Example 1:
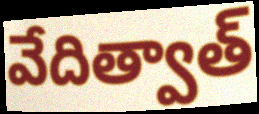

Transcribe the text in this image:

వేదిత్వాత్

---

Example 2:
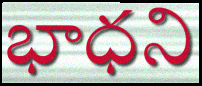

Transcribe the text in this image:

భాధని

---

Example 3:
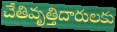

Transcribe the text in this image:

చేతివృత్తిదారులకు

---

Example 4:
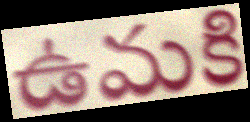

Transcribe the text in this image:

ఉమకి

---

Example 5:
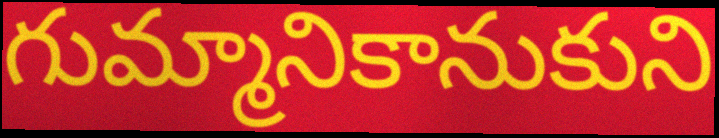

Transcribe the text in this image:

గుమ్మానికానుకుని